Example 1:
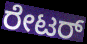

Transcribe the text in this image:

ರೇಟರ್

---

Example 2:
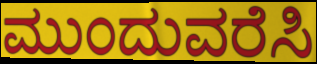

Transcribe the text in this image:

ಮುಂದುವರೆಸಿ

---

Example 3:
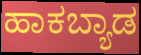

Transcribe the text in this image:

ಹಾಕಬ್ಯಾಡ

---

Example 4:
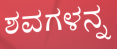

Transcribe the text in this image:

ಶವಗಳನ್ನ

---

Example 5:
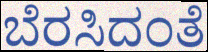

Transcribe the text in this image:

ಬೆರಸಿದಂತೆ